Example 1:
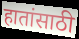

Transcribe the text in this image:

हातांसाठी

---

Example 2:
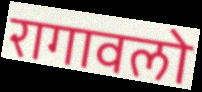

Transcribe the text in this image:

रागावलो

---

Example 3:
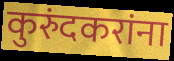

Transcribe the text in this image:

कुरुंदकरांना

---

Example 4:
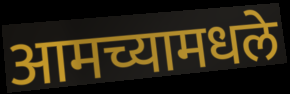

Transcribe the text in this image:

आमच्यामधले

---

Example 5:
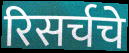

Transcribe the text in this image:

रिसर्चचे